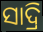
ସାଦ୍ରି